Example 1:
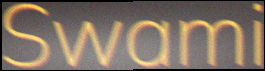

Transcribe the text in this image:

Swami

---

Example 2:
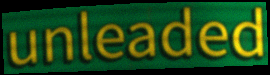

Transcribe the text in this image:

unleaded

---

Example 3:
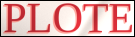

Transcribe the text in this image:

PLOTE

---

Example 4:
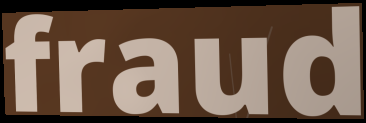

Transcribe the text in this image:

fraud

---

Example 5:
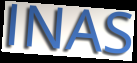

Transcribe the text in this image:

INAS